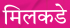
मिलकडे